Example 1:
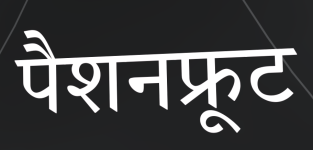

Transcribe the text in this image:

पैशनफ्रूट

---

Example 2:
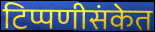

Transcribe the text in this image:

टिप्पणीसंकेत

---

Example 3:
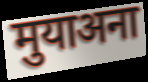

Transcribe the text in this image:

मुयाअना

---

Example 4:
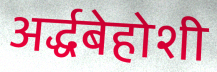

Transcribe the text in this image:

अर्द्धबेहोशी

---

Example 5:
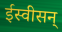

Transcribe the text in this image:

ईस्वीसन्